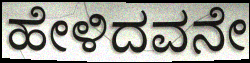
ಹೇಳಿದವನೇ